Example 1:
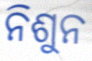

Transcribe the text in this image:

ନିଶୁନ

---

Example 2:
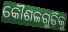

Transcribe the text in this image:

କୌଶଳଗୁଡ଼ିକୁ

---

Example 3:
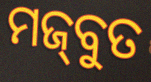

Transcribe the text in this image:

ମଜ୍‌ବୁତ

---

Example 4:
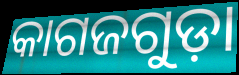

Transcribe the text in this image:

କାଗଜଗୁଡ଼ା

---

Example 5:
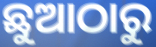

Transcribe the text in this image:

ଛୁଆଠାରୁ